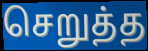
செறுத்த